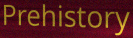
Prehistory